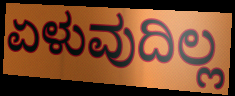
ಏಳುವುದಿಲ್ಲ